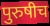
पुरुषीच